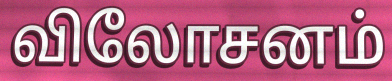
விலோசனம்